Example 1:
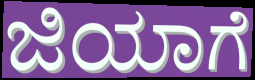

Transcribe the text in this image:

ಜಿಯಾಗೆ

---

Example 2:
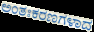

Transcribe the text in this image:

ಅಂತಃಕರಣಗಳಾದ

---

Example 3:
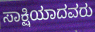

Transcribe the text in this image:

ಸಾಕ್ಷಿಯಾದವರು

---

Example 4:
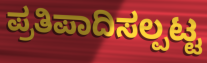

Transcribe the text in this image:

ಪ್ರತಿಪಾದಿಸಲ್ಪಟ್ಟ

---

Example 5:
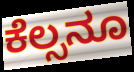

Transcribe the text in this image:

ಕೆಲ್ಸನೂ